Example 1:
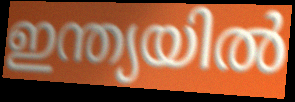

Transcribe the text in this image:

ഇന്ത്യയിൽ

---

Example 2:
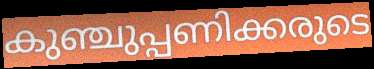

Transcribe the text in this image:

കുഞ്ചുപ്പണിക്കരുടെ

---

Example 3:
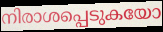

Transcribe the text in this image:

നിരാശപ്പെടുകയോ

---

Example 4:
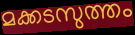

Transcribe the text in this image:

മക്കടസുത്തം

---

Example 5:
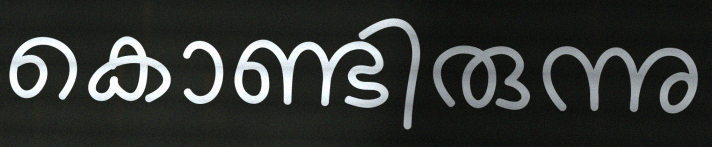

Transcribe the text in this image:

കൊണ്ടിരുന്നു